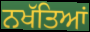
ਨਖੱਤਿਆਂ